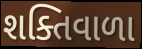
શક્તિવાળા